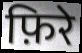
फ़िरे